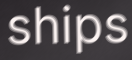
ships